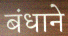
बंधाने